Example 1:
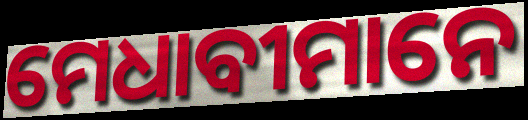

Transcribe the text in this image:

ମେଧାବୀମାନେ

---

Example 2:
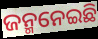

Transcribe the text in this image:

ଜନ୍ମନେଇଛି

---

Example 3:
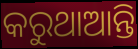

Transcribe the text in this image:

କରୁଥାଆନ୍ତି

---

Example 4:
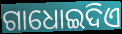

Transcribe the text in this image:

ଗାଧୋଇଦିଏ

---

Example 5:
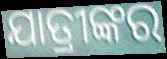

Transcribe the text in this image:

ଯାତ୍ରୀଙ୍କର